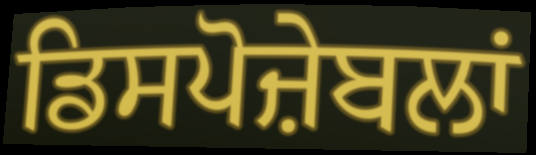
ਡਿਸਪੋਜ਼ੇਬਲਾਂ